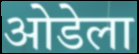
ओडेला